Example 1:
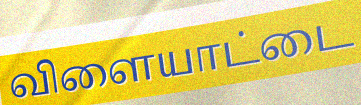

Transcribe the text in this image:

விளையாட்டை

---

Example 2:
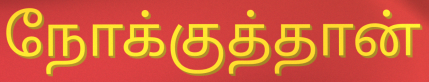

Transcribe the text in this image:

நோக்குத்தான்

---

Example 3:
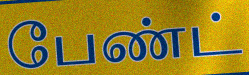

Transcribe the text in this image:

பேண்ட்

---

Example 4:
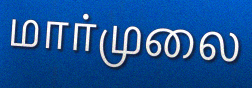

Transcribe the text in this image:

மார்முலை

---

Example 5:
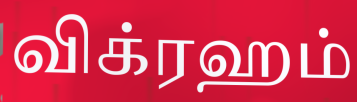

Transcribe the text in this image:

விக்ரஹம்